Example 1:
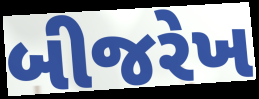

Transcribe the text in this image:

બીજરેખ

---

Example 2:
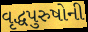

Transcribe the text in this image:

વૃદ્ધપુરુષોની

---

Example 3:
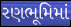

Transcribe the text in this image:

રણભૂમિમાં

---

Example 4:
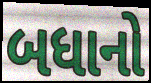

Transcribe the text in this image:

બધાનો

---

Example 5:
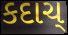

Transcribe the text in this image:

કદાચ્